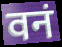
वनं